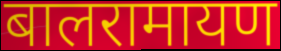
बालरामायण